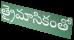
త్రైమాసికంతో